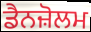
ਡੈਨਜ਼ੋਲਮ